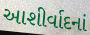
આશીર્વાદનાં